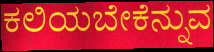
ಕಲಿಯಬೇಕೆನ್ನುವ